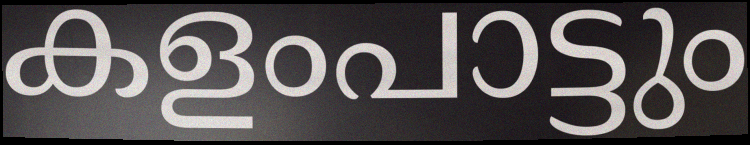
കളംപാട്ടും